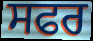
ਸਫਰ